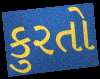
કુરતો